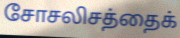
சோசலிசத்தைக்